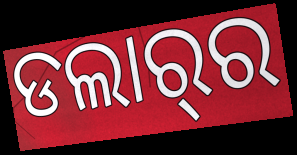
ଡଲାର୍‌ର